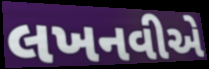
લખનવીએ